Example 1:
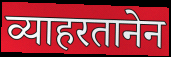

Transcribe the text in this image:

व्याहरतानेन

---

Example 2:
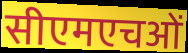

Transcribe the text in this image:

सीएमएचओं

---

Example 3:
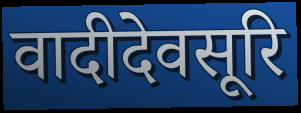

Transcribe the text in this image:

वादीदेवसूरि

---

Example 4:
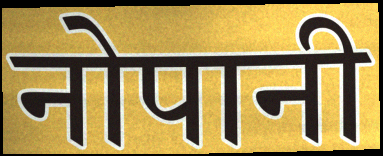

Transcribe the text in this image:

नोपानी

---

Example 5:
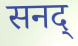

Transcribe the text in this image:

सनद्